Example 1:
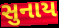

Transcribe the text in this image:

સુનાય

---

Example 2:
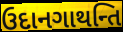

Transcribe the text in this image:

ઉદાનગાથન્તિ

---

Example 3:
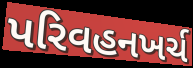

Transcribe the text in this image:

પરિવહનખર્ચ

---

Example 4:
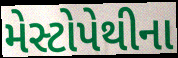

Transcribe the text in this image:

મેસ્ટોપેથીના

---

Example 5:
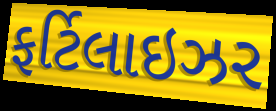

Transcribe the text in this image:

ફર્ટિલાઇઝર